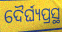
ଦୈର୍ଘ୍ୟପ୍ରସ୍ଥ